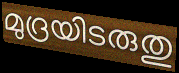
മുദ്രയിടരുതു